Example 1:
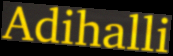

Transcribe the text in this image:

Adihalli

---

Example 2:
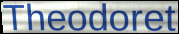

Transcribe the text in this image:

Theodoret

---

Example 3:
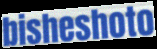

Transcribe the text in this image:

bisheshoto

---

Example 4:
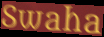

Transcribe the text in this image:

Swaha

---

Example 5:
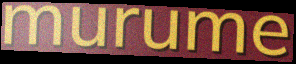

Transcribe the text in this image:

murume